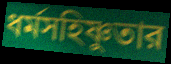
ধর্মসহিষ্ণুতার